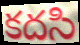
కదసి